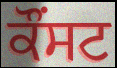
ਕੌਂਸਟ